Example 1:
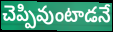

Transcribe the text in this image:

చెప్పివుంటాడనే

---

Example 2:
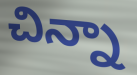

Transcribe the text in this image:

చిన్నా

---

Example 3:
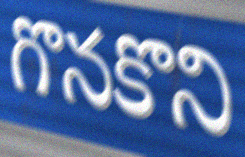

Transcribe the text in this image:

గొనకొని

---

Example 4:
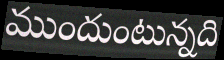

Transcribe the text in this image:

ముందుంటున్నది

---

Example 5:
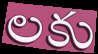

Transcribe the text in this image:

లకు